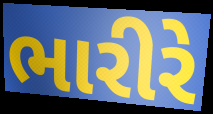
ભારીરે